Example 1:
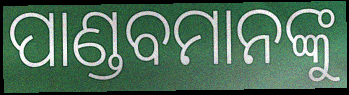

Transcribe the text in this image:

ପାଣ୍ଡବମାନଙ୍କୁ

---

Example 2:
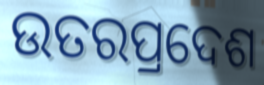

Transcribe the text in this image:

ଉତରପ୍ରଦେଶ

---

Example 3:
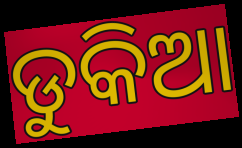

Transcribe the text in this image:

ଡୁକିଆ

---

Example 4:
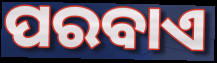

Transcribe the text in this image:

ପରବାଏ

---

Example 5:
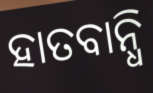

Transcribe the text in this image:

ହାତବାନ୍ଧି